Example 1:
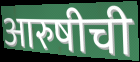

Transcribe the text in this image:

आरुषीची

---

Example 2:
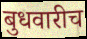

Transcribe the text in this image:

बुधवारीच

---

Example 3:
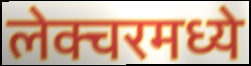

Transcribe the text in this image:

लेक्चरमध्ये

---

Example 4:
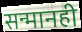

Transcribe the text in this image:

सन्मानही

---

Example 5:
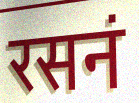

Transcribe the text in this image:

रसनं